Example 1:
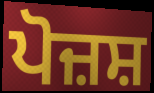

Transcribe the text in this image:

ਪੋਜ਼ਸ਼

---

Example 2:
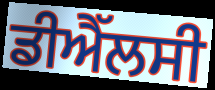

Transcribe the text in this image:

ਡੀਐੱਲਸੀ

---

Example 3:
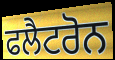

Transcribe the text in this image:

ਫਲੈਟਰੋਨ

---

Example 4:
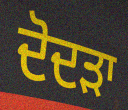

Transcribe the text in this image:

ਦੋਦੜਾ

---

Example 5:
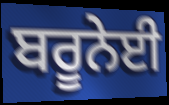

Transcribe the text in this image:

ਬਰੂਨੇਈ